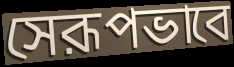
সেরূপভাবে